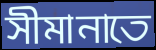
সীমানাতে